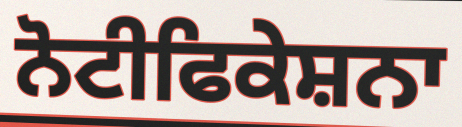
ਨੋਟੀਫਿਕੇਸ਼ਨਾ